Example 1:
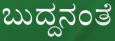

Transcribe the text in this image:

ಬುದ್ದನಂತೆ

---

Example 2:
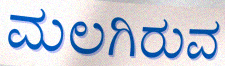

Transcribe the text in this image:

ಮಲಗಿರುವ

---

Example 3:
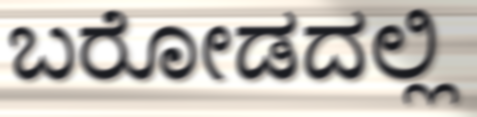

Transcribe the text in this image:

ಬರೋಡದಲ್ಲಿ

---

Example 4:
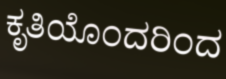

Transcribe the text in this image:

ಕೃತಿಯೊಂದರಿಂದ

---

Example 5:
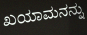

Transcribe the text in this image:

ಖಯಾಮನನ್ನು